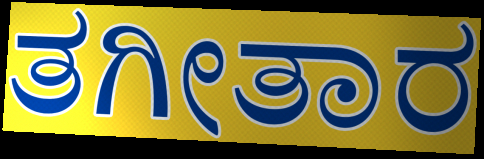
ತಗೀತಾರ